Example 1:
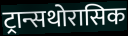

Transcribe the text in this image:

ट्रान्सथोरासिक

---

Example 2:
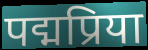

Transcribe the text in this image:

पद्मप्रिया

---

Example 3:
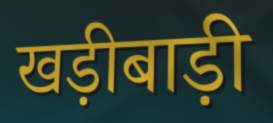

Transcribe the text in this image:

खड़ीबाड़ी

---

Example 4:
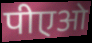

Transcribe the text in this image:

पीएओ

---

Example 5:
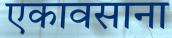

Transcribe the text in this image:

एकावसाना